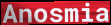
Anosmia